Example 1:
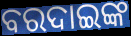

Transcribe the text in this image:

ବରଦାଇଙ୍କ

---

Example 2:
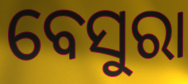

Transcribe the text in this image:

ବେସୁରା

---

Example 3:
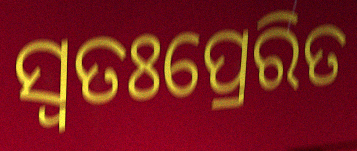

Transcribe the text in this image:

ସ୍ୱତଃପ୍ରେରିତ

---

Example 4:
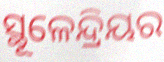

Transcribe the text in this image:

ସ୍ଥୂଳେନ୍ଦ୍ରିୟର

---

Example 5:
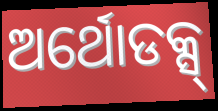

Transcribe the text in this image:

ଅର୍ଥୋଡକ୍ସ୍